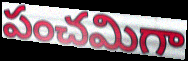
పంచమిగా